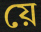
য়ে